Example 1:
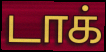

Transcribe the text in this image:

டாக்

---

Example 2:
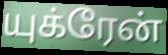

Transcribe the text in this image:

யுக்ரேன்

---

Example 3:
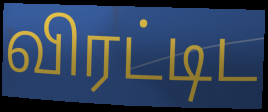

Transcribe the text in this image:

விரட்டிட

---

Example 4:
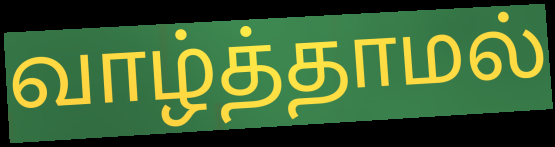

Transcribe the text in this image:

வாழ்த்தாமல்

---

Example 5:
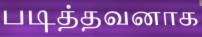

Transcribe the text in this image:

படித்தவனாக